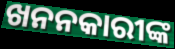
ଖନନକାରୀଙ୍କ